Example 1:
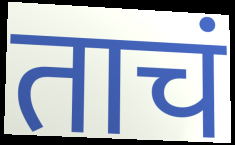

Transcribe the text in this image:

ताचं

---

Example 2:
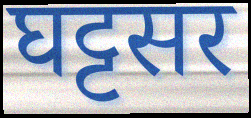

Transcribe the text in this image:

घट्टसर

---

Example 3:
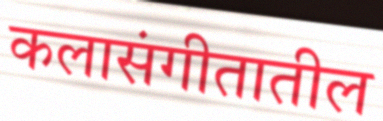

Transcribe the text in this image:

कलासंगीतातील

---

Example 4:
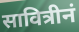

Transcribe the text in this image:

सावित्रीनं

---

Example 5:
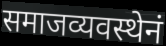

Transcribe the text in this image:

समाजव्यवस्थेनं